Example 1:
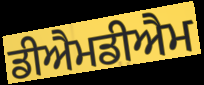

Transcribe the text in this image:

ਡੀਐਮਡੀਐਮ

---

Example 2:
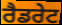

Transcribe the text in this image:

ਰੈਡਰੇਟ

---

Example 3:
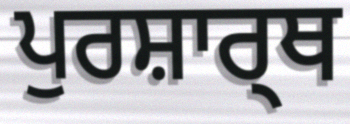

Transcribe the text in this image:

ਪੁਰਸ਼ਾਰ੍ਥ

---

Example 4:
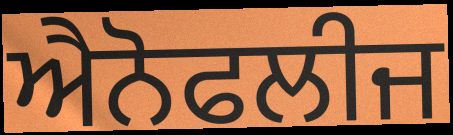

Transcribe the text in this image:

ਐਨੋਫਲੀਜ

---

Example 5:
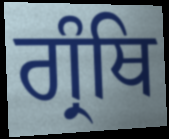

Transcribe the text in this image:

ਗ੍ਰੰਥਿ